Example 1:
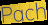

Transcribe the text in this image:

Pach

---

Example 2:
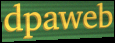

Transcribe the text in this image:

dpaweb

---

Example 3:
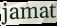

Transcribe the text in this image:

jamat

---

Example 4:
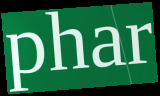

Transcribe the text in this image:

phar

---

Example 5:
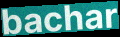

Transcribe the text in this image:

bachar